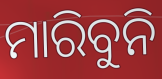
ମାରିବୁନି